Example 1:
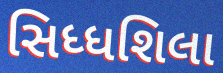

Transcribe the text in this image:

સિધ્ધશિલા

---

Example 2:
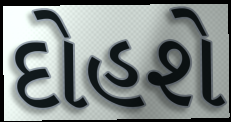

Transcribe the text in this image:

દોહશે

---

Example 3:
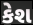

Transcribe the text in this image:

કેશ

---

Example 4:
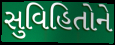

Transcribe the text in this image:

સુવિહિતોને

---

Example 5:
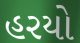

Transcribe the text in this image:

હરયો